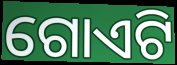
ଗୋଏଟି